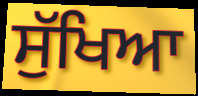
ਸੁੱਖਿਆ